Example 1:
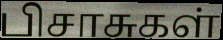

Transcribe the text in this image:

பிசாசுகள்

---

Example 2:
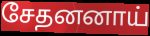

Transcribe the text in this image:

சேதனனாய்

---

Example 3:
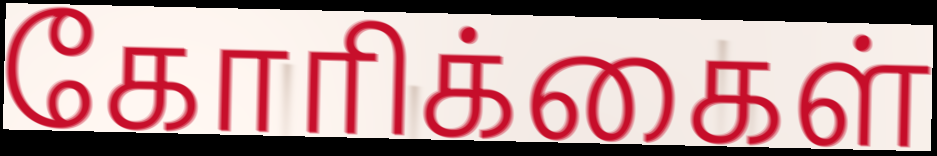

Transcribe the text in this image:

கோரிக்கைள்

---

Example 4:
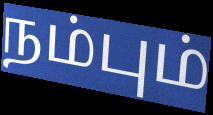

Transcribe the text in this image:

நம்பும்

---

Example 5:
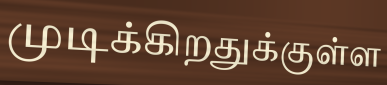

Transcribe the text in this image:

முடிக்கிறதுக்குள்ள